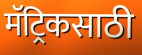
मॅट्रिकसाठी